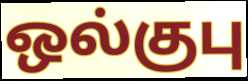
ஒல்குபு